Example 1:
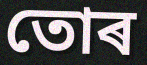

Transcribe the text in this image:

তোৰ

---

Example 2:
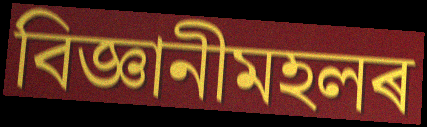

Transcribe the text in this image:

বিজ্ঞানীমহলৰ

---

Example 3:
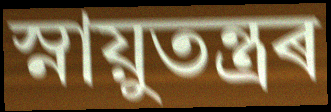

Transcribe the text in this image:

স্নায়ুতন্ত্ৰৰ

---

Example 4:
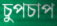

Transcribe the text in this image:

চুপচাপ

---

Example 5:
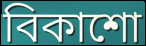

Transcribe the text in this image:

বিকাশো